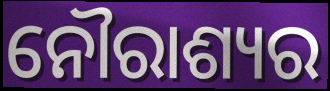
ନୌରାଶ୍ୟର